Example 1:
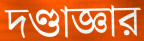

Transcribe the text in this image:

দণ্ডাজ্ঞার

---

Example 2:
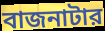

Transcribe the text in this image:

বাজনাটার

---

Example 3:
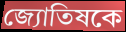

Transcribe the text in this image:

জ্যোতিষকে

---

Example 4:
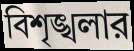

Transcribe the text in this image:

বিশৃঙ্খলার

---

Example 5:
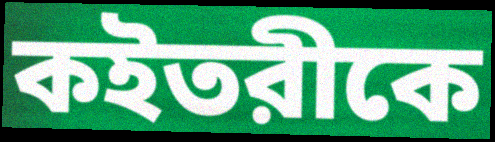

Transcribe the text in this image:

কইতরীকে